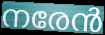
നരേൻ